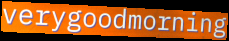
verygoodmorning